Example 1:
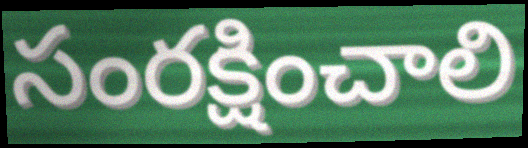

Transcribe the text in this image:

సంరక్షించాలి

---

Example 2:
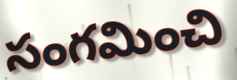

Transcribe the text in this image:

సంగమించి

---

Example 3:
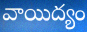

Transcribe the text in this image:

వాయిద్యం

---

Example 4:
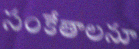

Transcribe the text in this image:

సంకేతాలనూ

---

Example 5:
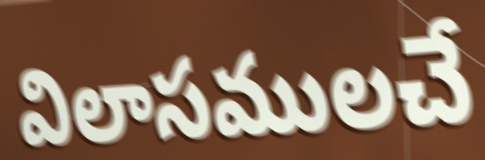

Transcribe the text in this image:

విలాసములచే